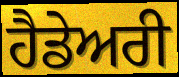
ਹੈਡੇਅਰੀ